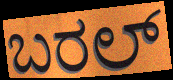
ಬರಲ್